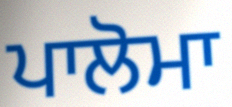
ਪਾਲੋਮਾ